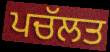
ਪਚੱਲਤ